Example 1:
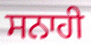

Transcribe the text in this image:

ਸਨਾਹੀ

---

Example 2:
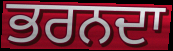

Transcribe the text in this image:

ਭਰਨਦਾ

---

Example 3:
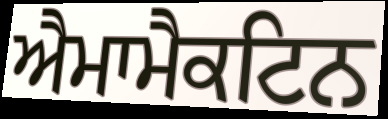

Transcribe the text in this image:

ਐਮਾਮੈਕਟਿਨ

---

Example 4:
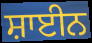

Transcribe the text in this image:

ਸ਼ਾਈਨ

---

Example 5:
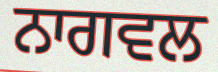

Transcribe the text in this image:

ਨਾਗਵਲ